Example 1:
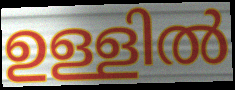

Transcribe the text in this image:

ഉള്ളിൽ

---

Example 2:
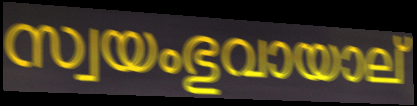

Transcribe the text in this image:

സ്വയംഭുവായാല്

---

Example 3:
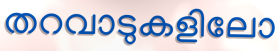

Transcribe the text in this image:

തറവാടുകളിലോ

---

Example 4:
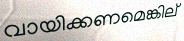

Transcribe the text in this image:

വായിക്കണമെങ്കില്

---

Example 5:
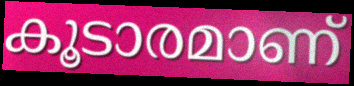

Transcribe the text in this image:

കൂടാരമാണ്